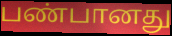
பண்பானது